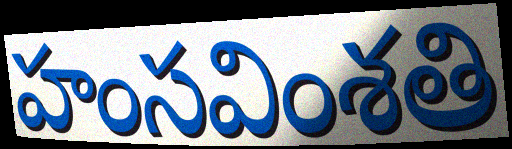
హంసవింశతి